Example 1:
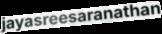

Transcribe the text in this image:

jayasreesaranathan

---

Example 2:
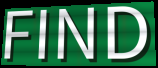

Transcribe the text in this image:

FIND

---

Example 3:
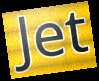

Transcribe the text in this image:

Jet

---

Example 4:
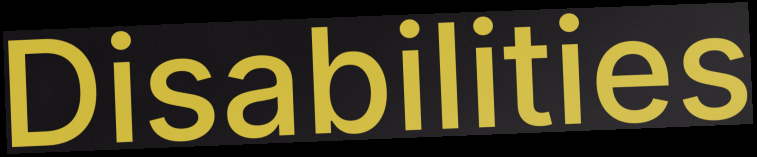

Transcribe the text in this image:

Disabilities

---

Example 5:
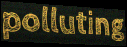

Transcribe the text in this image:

polluting